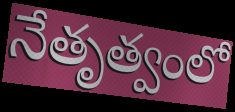
నేతృత్వంలో